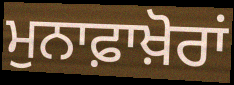
ਮੁਨਾਫ਼ਾਖ਼ੋਰਾਂ